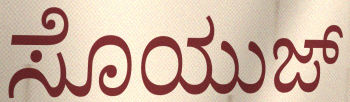
ಸೊಯುಜ್